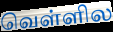
வெள்ளில